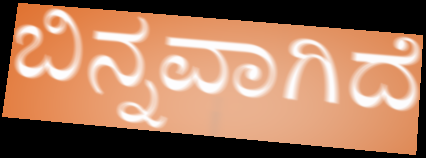
ಬಿನ್ನವಾಗಿದೆ